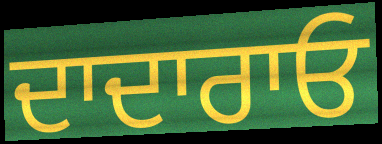
ਦਾਦਾਰਾਓ